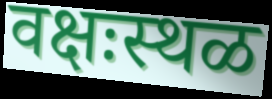
वक्षःस्थळ